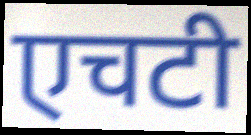
एचटी